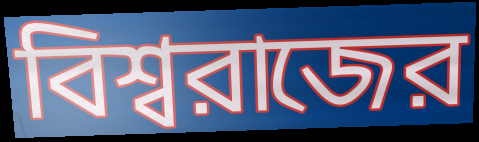
বিশ্বরাজের